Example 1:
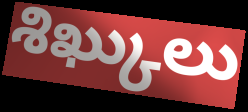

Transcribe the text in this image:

శిఖ్కులు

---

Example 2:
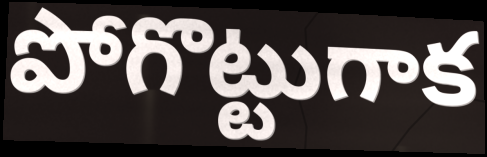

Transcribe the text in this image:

పోగొట్టుగాక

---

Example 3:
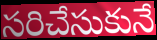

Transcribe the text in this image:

సరిచేసుకునే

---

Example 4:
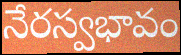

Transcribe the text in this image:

నేరస్వభావం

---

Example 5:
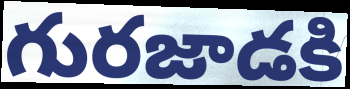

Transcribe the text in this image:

గురజాడకి